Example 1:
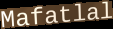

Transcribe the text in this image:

Mafatlal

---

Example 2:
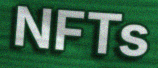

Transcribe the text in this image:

NFTs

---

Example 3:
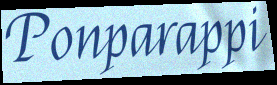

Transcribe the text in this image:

Ponparappi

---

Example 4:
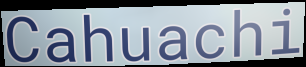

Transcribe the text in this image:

Cahuachi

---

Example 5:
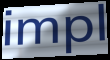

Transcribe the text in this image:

impl